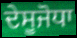
ਦੇਸੂਜੋਧਾ